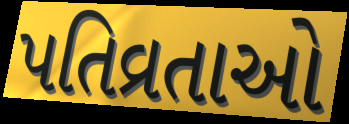
પતિવ્રતાઓ